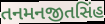
તનમનજીતસિંહ